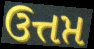
ઉત્તપ્ત